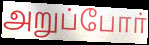
அறுப்போர்